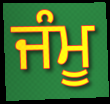
ਜੰਮੂ